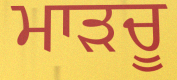
ਮਾੜਚੂ